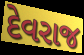
દેવરાજ